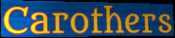
Carothers